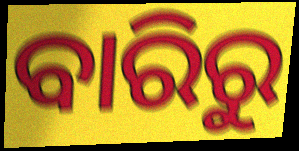
ବାରିରୁ